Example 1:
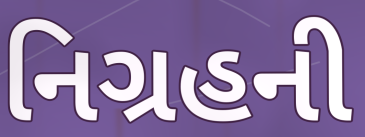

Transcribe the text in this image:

નિગ્રહની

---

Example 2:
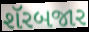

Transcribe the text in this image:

શૅરબજાર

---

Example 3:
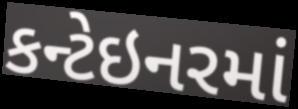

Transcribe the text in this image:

કન્ટેઇનરમાં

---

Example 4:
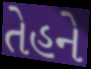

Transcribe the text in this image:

તેહને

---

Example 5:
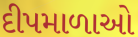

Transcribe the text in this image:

દીપમાળાઓ